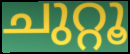
ചുറ്റൂ